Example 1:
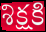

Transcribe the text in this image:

శిక్షకి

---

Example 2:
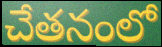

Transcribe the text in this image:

చేతనంలో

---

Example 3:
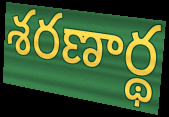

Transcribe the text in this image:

శరణార్థ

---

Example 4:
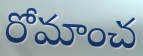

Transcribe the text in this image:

రోమాంచ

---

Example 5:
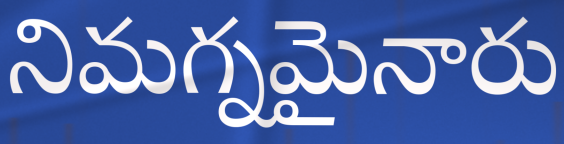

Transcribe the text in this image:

నిమగ్నమైనారు